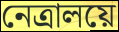
নেত্রালয়ে